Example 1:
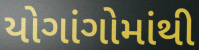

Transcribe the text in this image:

યોગાંગોમાંથી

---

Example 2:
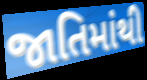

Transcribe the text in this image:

જાતિમાંથી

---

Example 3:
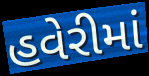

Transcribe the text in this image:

હવેરીમાં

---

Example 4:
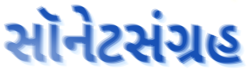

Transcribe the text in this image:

સૉનેટસંગ્રહ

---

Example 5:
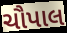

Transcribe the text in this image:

ચૌપાલ